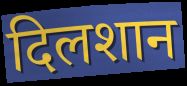
दिलशान